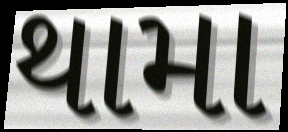
થામા